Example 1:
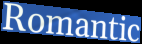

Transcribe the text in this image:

Romantic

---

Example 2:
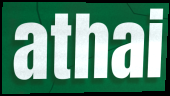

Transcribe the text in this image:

athai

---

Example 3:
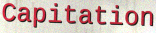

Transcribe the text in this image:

Capitation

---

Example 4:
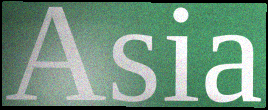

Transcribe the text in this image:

Asia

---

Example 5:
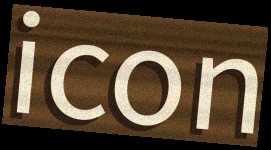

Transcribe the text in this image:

icon